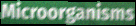
Microorganisms